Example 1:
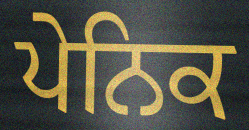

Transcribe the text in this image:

ਪੇਨਿਕ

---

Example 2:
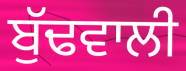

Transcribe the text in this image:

ਬੁੱਢਵਾਲੀ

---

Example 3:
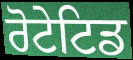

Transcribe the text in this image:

ਰੋਟੇਟਿਡ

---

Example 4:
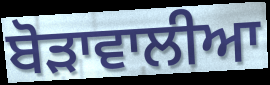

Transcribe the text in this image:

ਬੋੜਾਵਾਲੀਆ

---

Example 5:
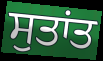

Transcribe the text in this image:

ਸੁਤਾਂਤ